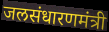
जलसंधारणमंत्री